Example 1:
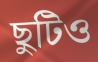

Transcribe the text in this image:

ছুটিও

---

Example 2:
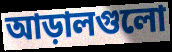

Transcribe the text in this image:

আড়ালগুলো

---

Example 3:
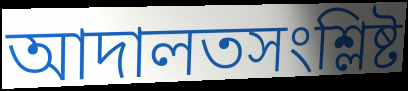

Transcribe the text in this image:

আদালতসংশ্লিষ্ট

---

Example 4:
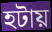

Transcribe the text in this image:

হটায়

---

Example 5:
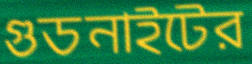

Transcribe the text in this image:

গুডনাইটের